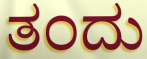
ತಂದು